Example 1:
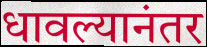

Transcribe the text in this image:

धावल्यानंतर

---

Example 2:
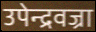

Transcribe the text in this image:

उपेन्द्रवज्रा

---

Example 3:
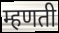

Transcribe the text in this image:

म्हणती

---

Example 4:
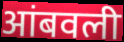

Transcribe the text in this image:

आंबवली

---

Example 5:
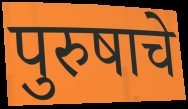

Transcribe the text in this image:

पुरुषाचे